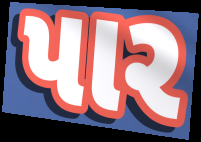
પાર